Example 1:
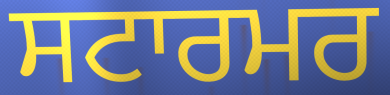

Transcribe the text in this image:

ਸਟਾਰਮਰ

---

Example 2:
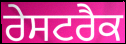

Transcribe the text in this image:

ਰੇਸਟਰੈਕ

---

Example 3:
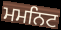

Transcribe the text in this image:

ਮਮਨਿਟ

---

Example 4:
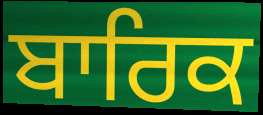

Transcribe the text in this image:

ਬਾਰਿਕ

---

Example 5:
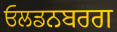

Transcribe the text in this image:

ਓਲਡਨਬਰਗ